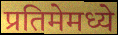
प्रतिमेमध्ये